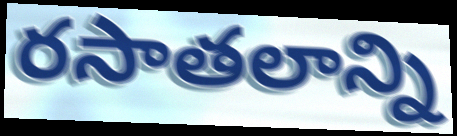
రసాతలాన్ని